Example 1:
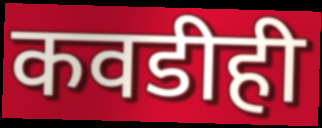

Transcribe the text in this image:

कवडीही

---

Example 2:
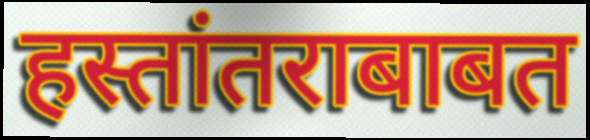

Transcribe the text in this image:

हस्तांतराबाबत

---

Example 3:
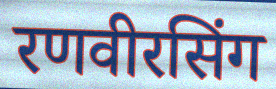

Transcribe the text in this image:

रणवीरसिंग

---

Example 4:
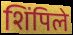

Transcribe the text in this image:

शिंपिले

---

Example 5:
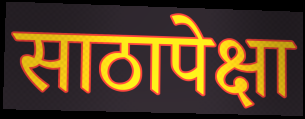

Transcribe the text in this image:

साठापेक्षा